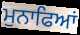
ਮੁਨਾਫਿਆਂ